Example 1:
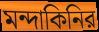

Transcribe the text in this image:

মন্দাকিনির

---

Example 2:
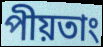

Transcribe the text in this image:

পীয়তাং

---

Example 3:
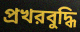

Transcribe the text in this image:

প্রখরবুদ্ধি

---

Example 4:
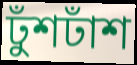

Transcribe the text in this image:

ঢুঁশঢাঁশ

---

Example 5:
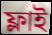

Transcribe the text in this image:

ফ্লাই